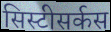
सिस्टीसर्कस